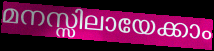
മനസ്സിലായേക്കാം